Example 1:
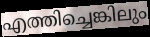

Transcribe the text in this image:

എത്തിച്ചെങ്കിലും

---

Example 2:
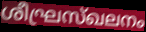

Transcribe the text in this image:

ശീഘ്രസ്ഖലനം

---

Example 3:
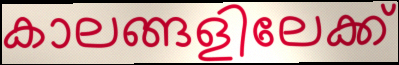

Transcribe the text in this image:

കാലങ്ങളിലേക്ക്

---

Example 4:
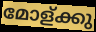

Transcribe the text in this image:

മോള്ക്കു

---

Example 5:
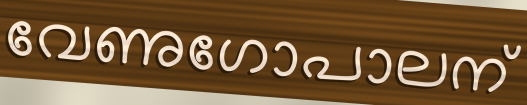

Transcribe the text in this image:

വേണുഗോപാലന്